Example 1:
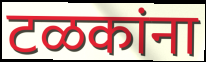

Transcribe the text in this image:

टळकांना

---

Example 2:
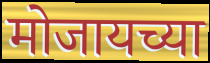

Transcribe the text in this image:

मोजायच्या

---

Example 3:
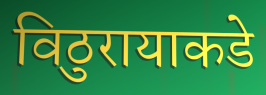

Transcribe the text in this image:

विठुरायाकडे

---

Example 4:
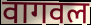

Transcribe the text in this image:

वागवल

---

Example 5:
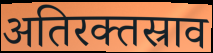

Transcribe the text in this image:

अतिरक्तस्राव